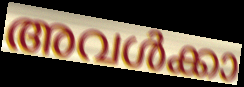
അവൾക്കാ